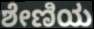
ಶೇಣಿಯ